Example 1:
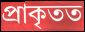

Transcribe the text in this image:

প্ৰাকৃতত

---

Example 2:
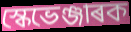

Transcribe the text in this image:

স্কেভেঞ্জাৰক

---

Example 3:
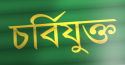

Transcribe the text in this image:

চৰ্বিযুক্ত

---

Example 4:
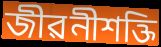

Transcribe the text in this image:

জীৱনীশক্তি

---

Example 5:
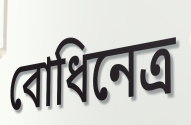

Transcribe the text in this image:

বোধিনেত্ৰ